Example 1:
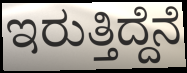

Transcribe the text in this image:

ಇರುತ್ತಿದ್ದೆನೆ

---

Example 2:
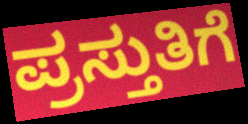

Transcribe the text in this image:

ಪ್ರಸ್ತುತಿಗೆ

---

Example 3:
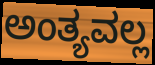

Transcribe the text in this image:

ಅಂತ್ಯವಲ್ಲ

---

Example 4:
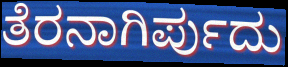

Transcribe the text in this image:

ತೆರನಾಗಿರ್ಪುದು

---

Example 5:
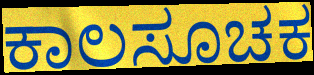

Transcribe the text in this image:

ಕಾಲಸೂಚಕ